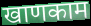
खाणकाम